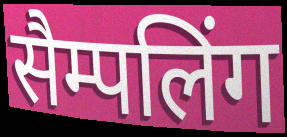
सैम्पलिंग